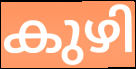
കുഴി